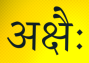
अक्षैः